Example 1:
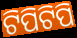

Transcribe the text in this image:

ଟିପିଟିପି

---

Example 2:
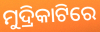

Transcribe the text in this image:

ମୁଦ୍ରିକାଟିରେ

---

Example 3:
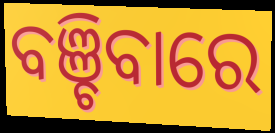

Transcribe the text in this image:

ବଞ୍ଚିବାରେ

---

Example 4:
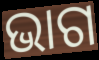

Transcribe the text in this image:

ଭାଗ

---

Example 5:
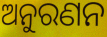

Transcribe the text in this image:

ଅନୁରଣନ